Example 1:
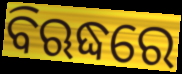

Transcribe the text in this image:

ବିଋଦ୍ଧରେ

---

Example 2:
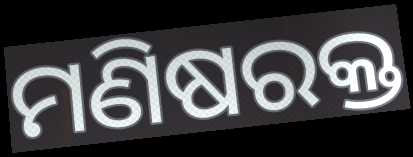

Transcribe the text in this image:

ମଣିଷରକ୍ତ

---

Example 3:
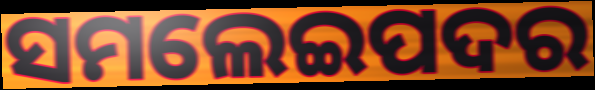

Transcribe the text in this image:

ସମଲେଇପଦର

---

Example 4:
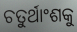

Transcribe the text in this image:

ଚତୁର୍ଥାଂଶକୁ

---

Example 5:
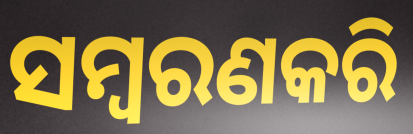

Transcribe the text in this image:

ସମ୍ବରଣକରି